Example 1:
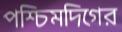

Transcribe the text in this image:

পশ্চিমদিগের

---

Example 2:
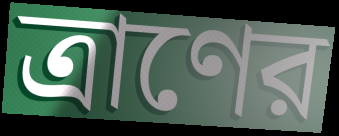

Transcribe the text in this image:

ত্রাণের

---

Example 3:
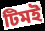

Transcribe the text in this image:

টিমই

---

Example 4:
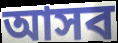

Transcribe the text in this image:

আসব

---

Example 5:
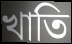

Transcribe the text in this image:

খাতি